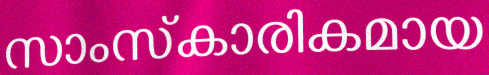
സാംസ്‌കാരികമായ